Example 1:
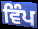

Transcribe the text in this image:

ਵਿੰਪ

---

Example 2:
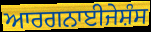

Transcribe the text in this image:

ਆਰਗਨਾਈਜੇਸ਼ੰਸ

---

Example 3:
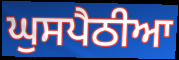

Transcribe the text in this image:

ਘੁਸਪੈਠੀਆ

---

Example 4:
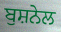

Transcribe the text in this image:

ਬੁਸ਼ਨੇਲ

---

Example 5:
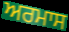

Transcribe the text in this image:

ਅਰਮਾਸ